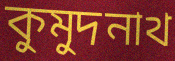
কুমুদনাথ